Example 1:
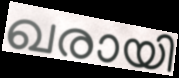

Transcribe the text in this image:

ഖരായി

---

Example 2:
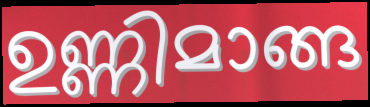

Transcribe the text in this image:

ഉണ്ണിമാങ്ങ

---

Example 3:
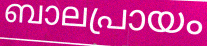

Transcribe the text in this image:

ബാലപ്രായം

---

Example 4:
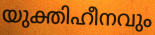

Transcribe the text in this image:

യുക്തിഹീനവും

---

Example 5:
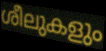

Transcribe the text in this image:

ശീലുകളും